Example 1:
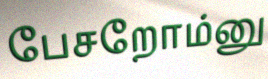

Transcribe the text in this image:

பேசறோம்னு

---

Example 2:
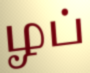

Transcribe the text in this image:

ழப்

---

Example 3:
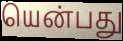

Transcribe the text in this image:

யென்பது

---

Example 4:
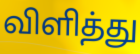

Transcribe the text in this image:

விளித்து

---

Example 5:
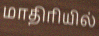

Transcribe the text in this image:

மாதிரியில்